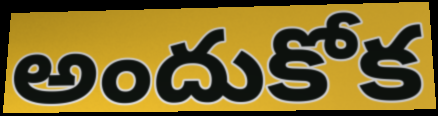
అందుకోక